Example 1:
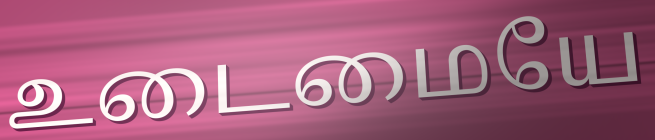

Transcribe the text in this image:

உடைமையே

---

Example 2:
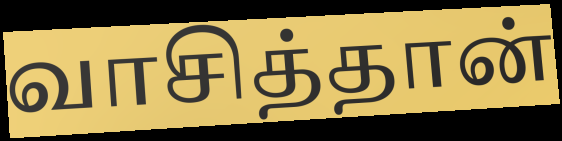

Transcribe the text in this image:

வாசித்தான்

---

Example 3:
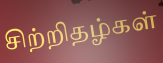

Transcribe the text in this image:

சிற்றிதழ்கள்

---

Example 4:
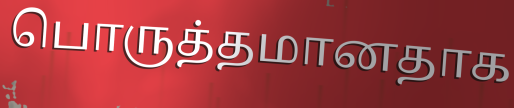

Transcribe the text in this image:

பொருத்தமானதாக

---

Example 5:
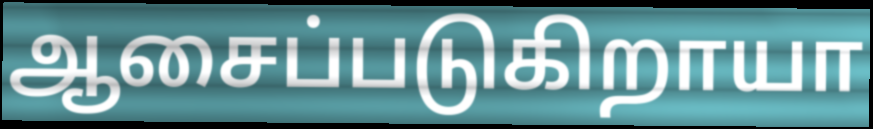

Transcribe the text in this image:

ஆசைப்படுகிறாயா